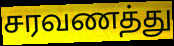
சரவணத்து